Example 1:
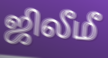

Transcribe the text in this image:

ஜிலீமீ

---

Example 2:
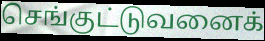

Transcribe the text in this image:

செங்குட்டுவனைக்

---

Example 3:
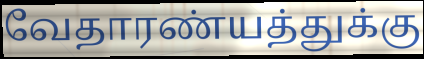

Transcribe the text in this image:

வேதாரண்யத்துக்கு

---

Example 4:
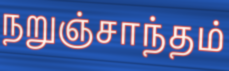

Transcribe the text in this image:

நறுஞ்சாந்தம்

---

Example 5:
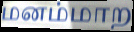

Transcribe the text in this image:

மனம்மாற